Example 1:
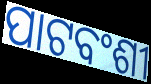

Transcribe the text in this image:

ପାଟବଂଶୀ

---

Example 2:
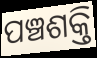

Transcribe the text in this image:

ପଞ୍ଚଶକ୍ତି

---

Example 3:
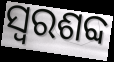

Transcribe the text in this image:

ସ୍ୱରଶବ୍ଦ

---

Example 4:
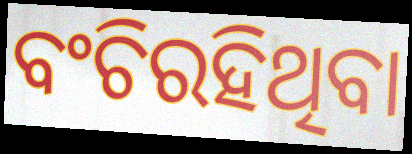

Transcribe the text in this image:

ବଂଚିରହିଥିବା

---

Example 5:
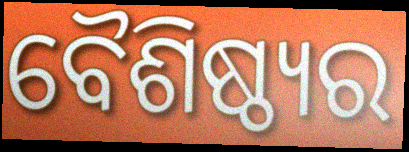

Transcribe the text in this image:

ବୈଶିଷ୍ଠ୍ୟର